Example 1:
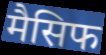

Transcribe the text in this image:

मैसिफ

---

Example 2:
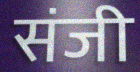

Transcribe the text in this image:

संजी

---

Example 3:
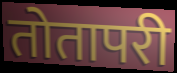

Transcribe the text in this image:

तोतापरी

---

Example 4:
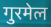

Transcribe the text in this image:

गुरमेल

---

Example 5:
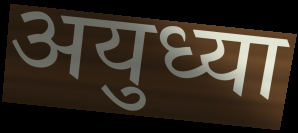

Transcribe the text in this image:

अयुध्या